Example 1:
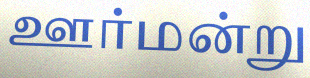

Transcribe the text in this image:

ஊர்மன்று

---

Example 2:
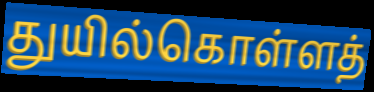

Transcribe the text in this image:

துயில்கொள்ளத்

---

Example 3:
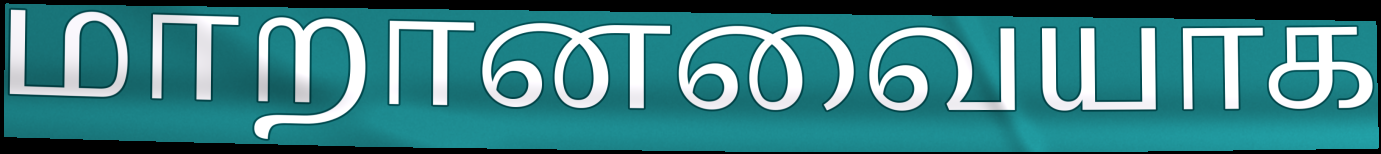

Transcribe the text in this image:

மாறானவையாக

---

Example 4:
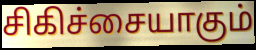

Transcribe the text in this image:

சிகிச்சையாகும்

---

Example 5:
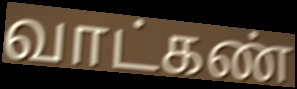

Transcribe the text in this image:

வாட்கண்